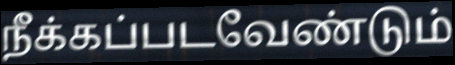
நீக்கப்படவேண்டும்